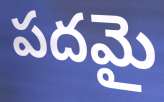
పదమై